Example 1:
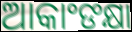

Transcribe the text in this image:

ଆକାଂଙକ୍ଷା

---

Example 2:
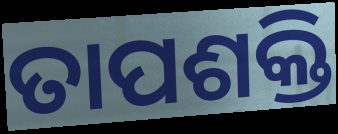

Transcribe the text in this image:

ତାପଶକ୍ତି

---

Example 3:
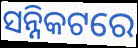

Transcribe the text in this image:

ସନ୍ନିକଟରେ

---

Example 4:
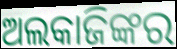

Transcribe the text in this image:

ଅଲକାଜିଙ୍କର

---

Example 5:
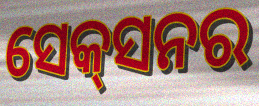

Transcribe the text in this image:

ସେକ୍‌ସନର